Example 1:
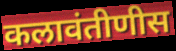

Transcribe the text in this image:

कलावंतीणीस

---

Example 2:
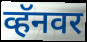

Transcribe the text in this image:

व्हॅनवर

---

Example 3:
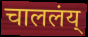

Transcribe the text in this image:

चाललंय्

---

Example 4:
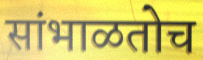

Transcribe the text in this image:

सांभाळतोच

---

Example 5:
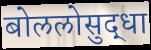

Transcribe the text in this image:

बोललोसुद्धा